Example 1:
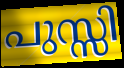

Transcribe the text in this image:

പുസ്സി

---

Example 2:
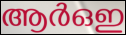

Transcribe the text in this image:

ആർഒഇ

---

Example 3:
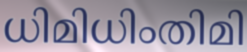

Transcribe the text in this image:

ധിമിധിംതിമി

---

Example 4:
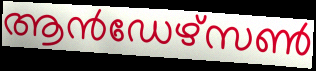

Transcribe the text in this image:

ആൻഡേഴ്സൺ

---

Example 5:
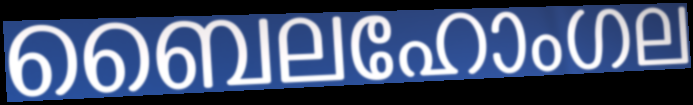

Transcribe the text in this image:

ബൈലഹോംഗല